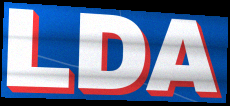
LDA